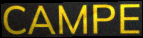
CAMPE